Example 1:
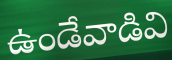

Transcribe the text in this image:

ఉండేవాడివి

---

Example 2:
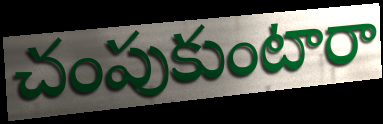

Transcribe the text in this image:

చంపుకుంటారా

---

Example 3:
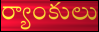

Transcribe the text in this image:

ర్యాంకులు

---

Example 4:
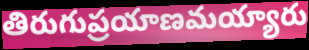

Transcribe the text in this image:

తిరుగుప్రయాణమయ్యారు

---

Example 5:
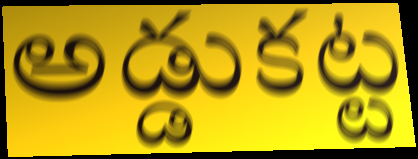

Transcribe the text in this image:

అడ్డుకట్ట